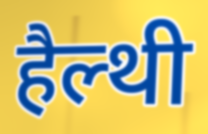
हैल्थी